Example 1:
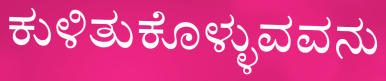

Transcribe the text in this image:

ಕುಳಿತುಕೊಳ್ಳುವವನು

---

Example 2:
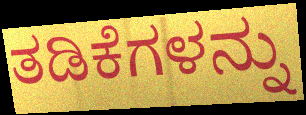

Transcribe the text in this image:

ತಡಿಕೆಗಳನ್ನು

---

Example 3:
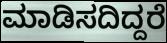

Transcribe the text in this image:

ಮಾಡಿಸದಿದ್ದರೆ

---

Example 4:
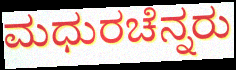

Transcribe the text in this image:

ಮಧುರಚೆನ್ನರು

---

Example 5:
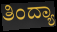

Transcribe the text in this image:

ತಿಂದ್ಯಾ